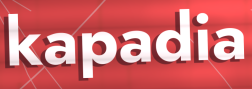
kapadia